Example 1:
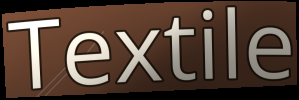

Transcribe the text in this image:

Textile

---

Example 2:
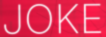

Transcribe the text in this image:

JOKE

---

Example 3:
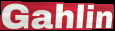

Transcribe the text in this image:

Gahlin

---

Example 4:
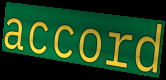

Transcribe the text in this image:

accord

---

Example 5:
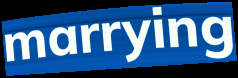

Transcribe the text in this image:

marrying